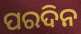
ପରଦିନ